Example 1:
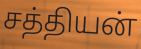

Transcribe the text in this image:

சத்தியன்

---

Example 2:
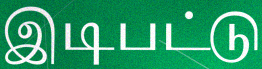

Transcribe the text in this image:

இடிபட்டு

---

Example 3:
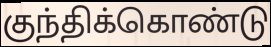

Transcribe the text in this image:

குந்திக்கொண்டு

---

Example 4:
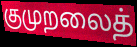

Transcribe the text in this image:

குமுறலைத்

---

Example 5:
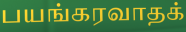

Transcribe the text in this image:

பயங்கரவாதக்